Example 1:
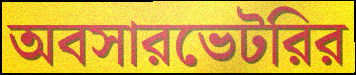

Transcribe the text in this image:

অবসারভেটরির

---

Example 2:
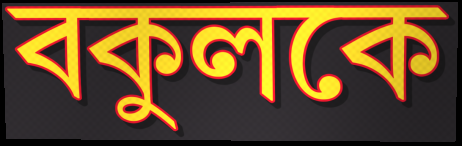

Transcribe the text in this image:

বকুলকে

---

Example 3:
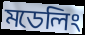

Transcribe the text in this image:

মডেলিং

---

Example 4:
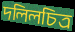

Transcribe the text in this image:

দলিলচিত্র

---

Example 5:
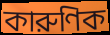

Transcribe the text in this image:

কারুণিক